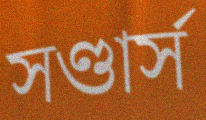
সণ্ডার্স